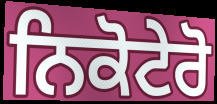
ਨਿਕੋਟੇਰੋ